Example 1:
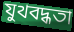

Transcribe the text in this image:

যুথবদ্ধতা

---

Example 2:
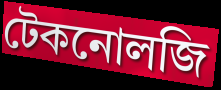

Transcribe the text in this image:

টেকনোলজি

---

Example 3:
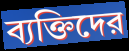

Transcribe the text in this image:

ব্যক্তিদের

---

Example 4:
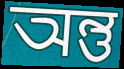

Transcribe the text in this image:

অন্তু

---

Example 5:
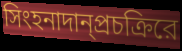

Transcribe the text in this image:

সিংহনাদান্প্রচক্রিরে